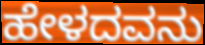
ಹೇಳದವನು